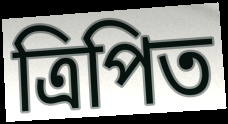
ত্রিপিত